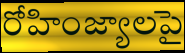
రోహింజ్యాలపై